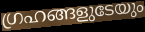
ഗ്രഹങ്ങളുടേയും